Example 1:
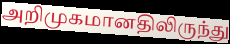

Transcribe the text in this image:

அறிமுகமானதிலிருந்து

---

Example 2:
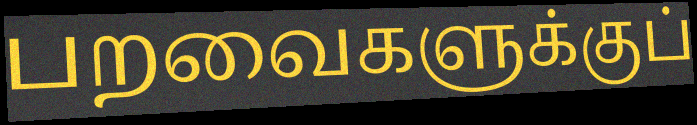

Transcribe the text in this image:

பறவைகளுக்குப்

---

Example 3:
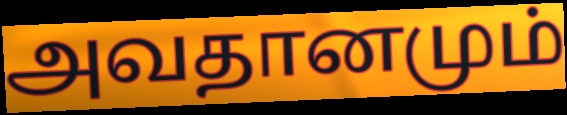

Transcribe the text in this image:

அவதானமும்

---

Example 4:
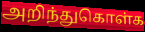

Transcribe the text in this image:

அறிந்துகொள்க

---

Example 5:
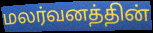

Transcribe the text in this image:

மலர்வனத்தின்